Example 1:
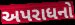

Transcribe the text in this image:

અપરાધનો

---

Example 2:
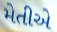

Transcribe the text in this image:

મેતીએ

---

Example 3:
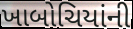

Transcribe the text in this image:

ખાબોચિયાંની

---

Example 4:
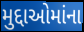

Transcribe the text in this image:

મુદ્દાઓમાંના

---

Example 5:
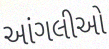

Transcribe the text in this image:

આંગલીઓ